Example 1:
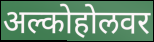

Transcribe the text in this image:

अल्कोहोलवर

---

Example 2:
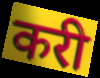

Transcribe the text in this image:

करी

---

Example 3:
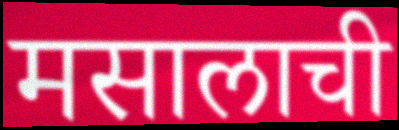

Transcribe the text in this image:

मसालाची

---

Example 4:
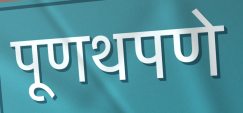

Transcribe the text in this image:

पूणथपणे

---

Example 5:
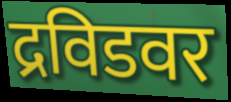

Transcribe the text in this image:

द्रविडवर